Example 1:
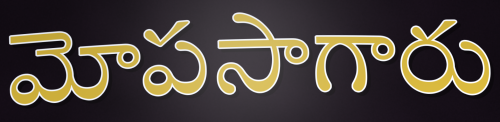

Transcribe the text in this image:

మోపసాగారు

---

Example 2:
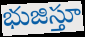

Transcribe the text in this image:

భుజిస్తూ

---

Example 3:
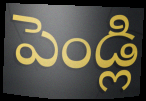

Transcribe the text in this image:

పెండ్లి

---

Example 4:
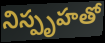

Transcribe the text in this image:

నిస్పృహతో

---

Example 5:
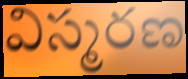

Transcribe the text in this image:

విస్మరణ